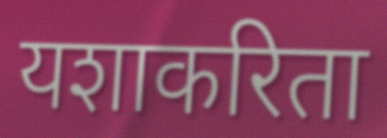
यशाकरिता